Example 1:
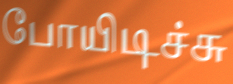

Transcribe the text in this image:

போயிடிச்சு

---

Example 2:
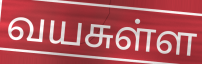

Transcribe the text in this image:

வயசுள்ள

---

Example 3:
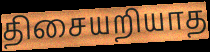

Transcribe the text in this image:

திசையறியாத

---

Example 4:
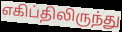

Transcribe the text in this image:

எகிப்திலிருந்து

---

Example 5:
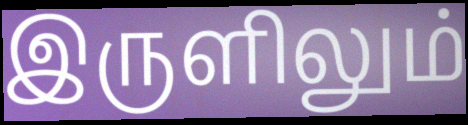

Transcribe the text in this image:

இருளிலும்